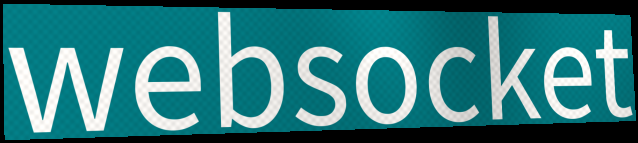
websocket